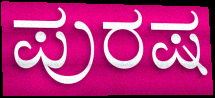
ಪುರಷ